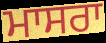
ਮਾਸਰਾ